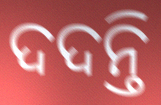
ଦଦନ୍ତି